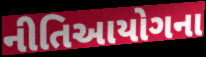
નીતિઆયોગના